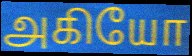
அகியோ